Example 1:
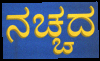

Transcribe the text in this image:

ನಚ್ಚದ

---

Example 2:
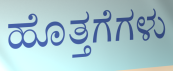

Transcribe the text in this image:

ಹೊತ್ತಗೆಗಳು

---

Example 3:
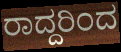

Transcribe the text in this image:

ರಾದ್ದರಿಂದ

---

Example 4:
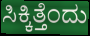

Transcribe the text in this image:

ಸಿಕ್ಕಿತ್ತೆಂದು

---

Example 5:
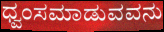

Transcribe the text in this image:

ಧ್ವಂಸಮಾಡುವವನು